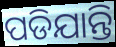
ପଡିଯାନ୍ତି